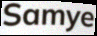
Samye